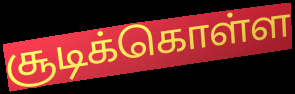
சூடிக்கொள்ள